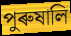
পুৰুষালি